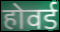
होवर्ड